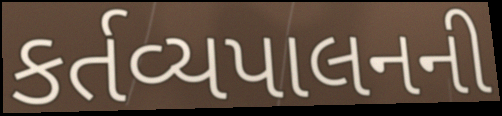
કર્તવ્યપાલનની